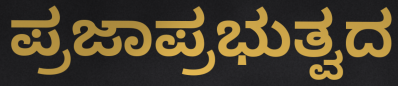
ಪ್ರಜಾಪ್ರಭುತ್ವದ